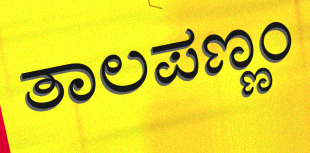
ತಾಲಪಣ್ಣಂ